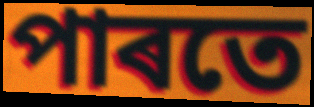
পাৰতে